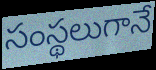
సంస్థలుగానే